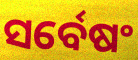
ସର୍ବେଷଂ